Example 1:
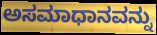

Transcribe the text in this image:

ಅಸಮಾಧಾನವನ್ನು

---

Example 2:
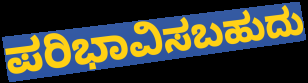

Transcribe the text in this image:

ಪರಿಭಾವಿಸಬಹುದು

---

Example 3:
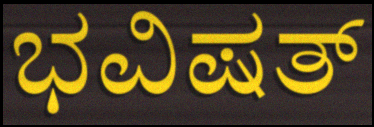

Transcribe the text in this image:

ಭವಿಷತ್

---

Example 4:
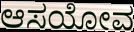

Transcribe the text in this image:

ಆಸಯೋವ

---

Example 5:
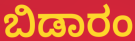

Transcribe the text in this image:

ಬಿಡಾರಂ